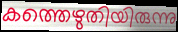
കത്തെഴുതിയിരുന്നു